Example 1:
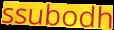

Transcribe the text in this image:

ssubodh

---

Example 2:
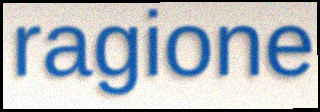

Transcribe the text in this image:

ragione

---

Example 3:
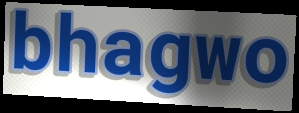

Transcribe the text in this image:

bhagwo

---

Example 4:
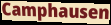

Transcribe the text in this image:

Camphausen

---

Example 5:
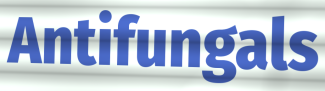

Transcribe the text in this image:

Antifungals